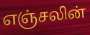
எஞ்சலின்